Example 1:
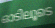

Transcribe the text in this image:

ഓടിലൂടെ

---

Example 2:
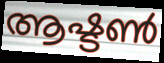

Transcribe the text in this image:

ആഷ്ടൺ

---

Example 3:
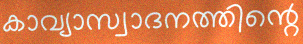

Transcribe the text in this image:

കാവ്യാസ്വാദനത്തിന്റെ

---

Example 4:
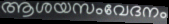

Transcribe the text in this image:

ആശയസംവേദനം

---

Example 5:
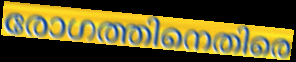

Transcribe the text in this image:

രോഗത്തിനെതിരെ